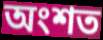
অংশত